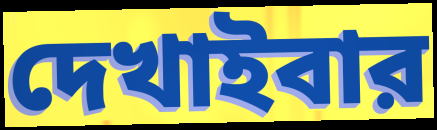
দেখাইবার